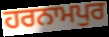
ਹਰਨਾਮਪੁਰ